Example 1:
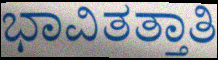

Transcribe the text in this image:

ಭಾವಿತತ್ತಾತಿ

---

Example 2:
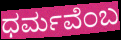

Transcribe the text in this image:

ಧರ್ಮವೆಂಬ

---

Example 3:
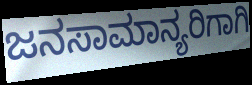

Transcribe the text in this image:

ಜನಸಾಮಾನ್ಯರಿಗಾಗಿ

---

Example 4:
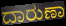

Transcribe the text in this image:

ದಾರುಣಾ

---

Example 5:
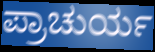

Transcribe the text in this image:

ಪ್ರಾಚುರ್ಯ